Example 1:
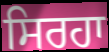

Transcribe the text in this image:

ਸਿਰਹਾ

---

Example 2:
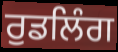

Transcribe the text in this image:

ਰੁਡਲਿੰਗ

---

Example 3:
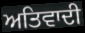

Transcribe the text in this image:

ਅਤਿਵਾਦੀ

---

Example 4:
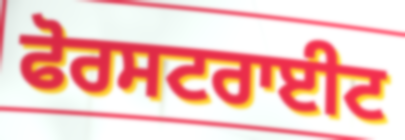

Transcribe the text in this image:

ਫੋਰਸਟਰਾਈਟ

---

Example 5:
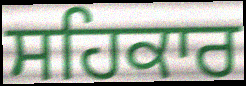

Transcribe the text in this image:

ਸਹਿਕਾਰ